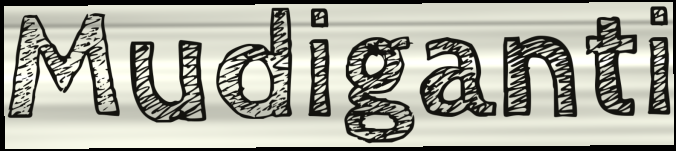
Mudiganti